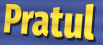
Pratul